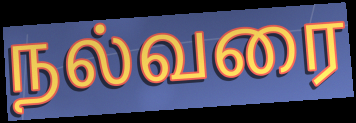
நல்வரை